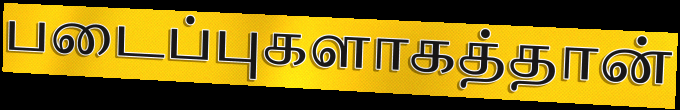
படைப்புகளாகத்தான்